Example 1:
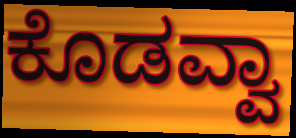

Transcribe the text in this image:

ಕೊಡವ್ವಾ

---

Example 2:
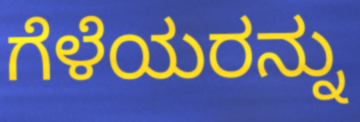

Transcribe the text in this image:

ಗೆಳೆಯರನ್ನು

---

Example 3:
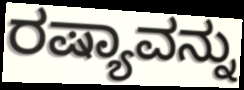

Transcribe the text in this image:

ರಷ್ಯಾವನ್ನು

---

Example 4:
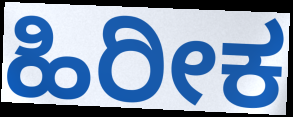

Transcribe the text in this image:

ಹಿರೀಕ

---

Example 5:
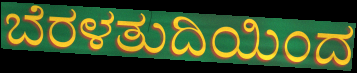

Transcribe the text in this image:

ಬೆರಳತುದಿಯಿಂದ